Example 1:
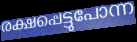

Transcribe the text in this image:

രക്ഷപ്പെട്ടുപോന്ന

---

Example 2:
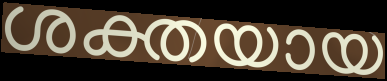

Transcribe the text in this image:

ശക്തയായ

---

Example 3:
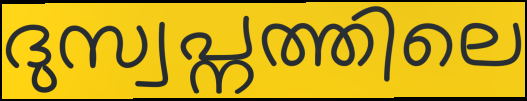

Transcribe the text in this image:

ദുസ്വപ്നത്തിലെ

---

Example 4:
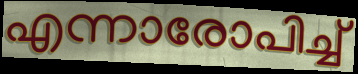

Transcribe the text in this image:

എന്നാരോപിച്ച്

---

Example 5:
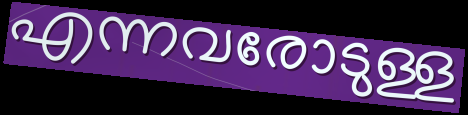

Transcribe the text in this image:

എന്നവരോടുള്ള